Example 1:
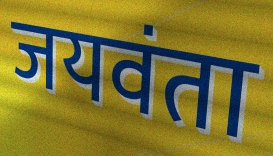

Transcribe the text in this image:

जयवंता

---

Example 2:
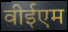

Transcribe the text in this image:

वीईएम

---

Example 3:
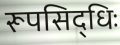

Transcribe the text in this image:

रूपसिद्धिः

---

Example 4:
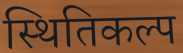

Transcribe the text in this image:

स्थितिकल्प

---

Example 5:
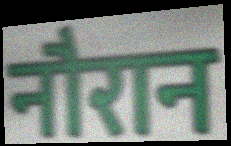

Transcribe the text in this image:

नौरान